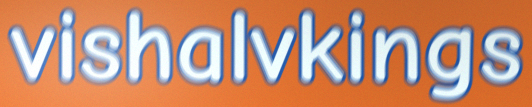
vishalvkings